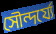
সৌন্দর্য্যে